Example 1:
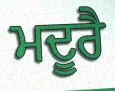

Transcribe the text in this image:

ਮਦੂਰੈ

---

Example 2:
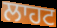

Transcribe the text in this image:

ਲਾਹਟ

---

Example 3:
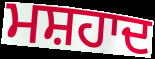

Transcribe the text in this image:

ਮਸ਼ਹਾਦ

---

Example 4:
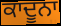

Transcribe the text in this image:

ਕਾਦੂਨਾ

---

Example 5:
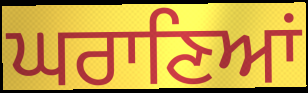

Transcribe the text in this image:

ਘਰਾਣਿਆਂ